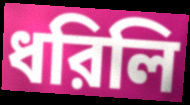
ধরিলি